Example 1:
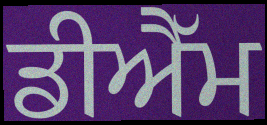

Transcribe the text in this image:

ਡੀਐੱਮ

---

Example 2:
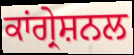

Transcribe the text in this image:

ਕਾਂਗ੍ਰੇਸ਼ਨਲ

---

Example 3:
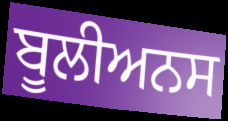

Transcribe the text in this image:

ਬੂਲੀਅਨਸ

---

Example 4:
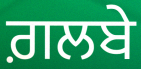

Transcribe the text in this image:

ਗ਼ਲਬੇ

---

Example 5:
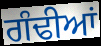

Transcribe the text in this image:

ਗੰਢੀਆਂ